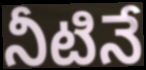
నీటినే